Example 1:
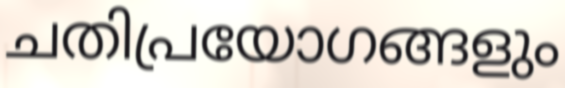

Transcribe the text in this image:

ചതിപ്രയോഗങ്ങളും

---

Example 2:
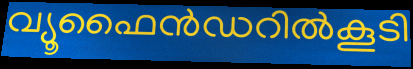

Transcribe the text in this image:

വ്യൂഫൈൻഡറിൽകൂടി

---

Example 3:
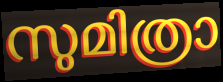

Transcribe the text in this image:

സുമിത്രാ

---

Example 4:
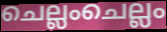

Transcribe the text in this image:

ചെല്ലംചെല്ലം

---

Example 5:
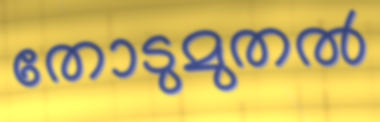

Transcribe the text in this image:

തോടുമുതൽ